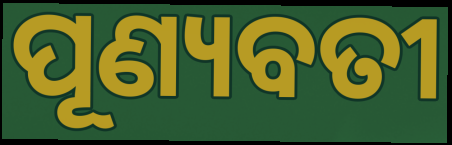
ପୂଣ୍ୟବତୀ